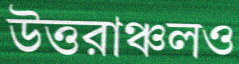
উত্তরাঞ্চলও